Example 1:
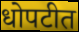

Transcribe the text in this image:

धोपटीत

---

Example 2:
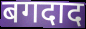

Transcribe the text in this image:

बगदाद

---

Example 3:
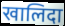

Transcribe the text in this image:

खालिदा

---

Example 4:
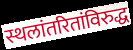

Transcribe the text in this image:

स्थलांतरितांविरुद्ध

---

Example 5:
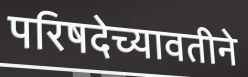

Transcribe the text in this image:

परिषदेच्यावतीने